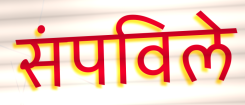
संपविले